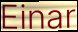
Einar